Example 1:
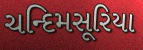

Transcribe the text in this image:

ચન્દિમસૂરિયા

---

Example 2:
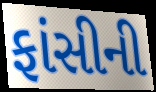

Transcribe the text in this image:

ફાંસીની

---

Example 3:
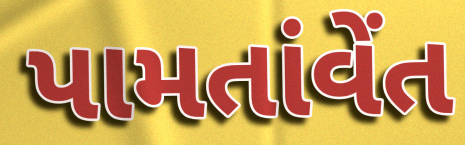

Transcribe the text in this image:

પામતાંવેંત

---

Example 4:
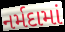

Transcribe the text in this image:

નર્મદામાં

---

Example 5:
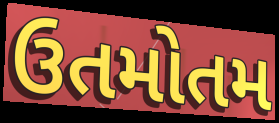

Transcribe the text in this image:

ઉતમોતમ